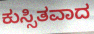
ಕುಸ್ಸಿತವಾದ